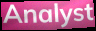
Analyst